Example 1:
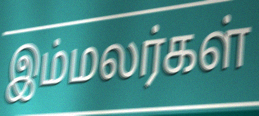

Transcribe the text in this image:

இம்மலர்கள்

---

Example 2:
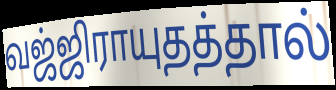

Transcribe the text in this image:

வஜ்ஜிராயுதத்தால்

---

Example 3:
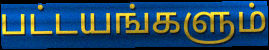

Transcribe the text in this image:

பட்டயங்களும்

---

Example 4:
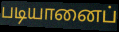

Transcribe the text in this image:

படியானைப்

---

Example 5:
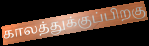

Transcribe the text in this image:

காலத்துக்குப்பிறகு